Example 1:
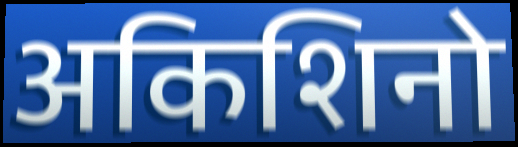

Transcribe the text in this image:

अकिशिनो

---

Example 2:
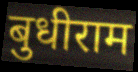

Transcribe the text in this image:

बुधीराम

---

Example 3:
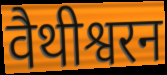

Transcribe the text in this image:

वैथीश्वरन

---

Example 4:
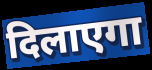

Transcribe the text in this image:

दिलाएगा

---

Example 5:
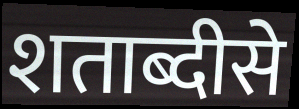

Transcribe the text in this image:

शताब्दीसे